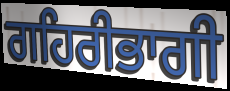
ਗਹਿਰੀਭਾਗੀ